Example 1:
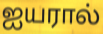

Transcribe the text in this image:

ஐயரால்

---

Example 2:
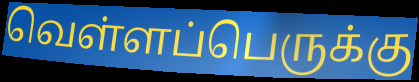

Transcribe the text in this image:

வெள்ளப்பெருக்கு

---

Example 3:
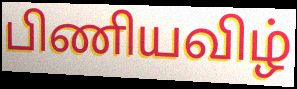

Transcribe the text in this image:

பிணியவிழ்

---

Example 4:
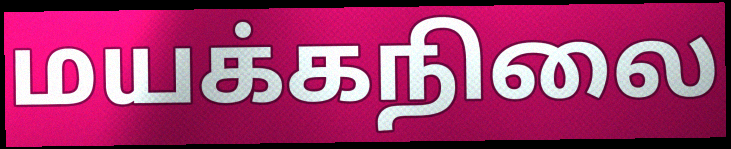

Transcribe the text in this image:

மயக்கநிலை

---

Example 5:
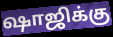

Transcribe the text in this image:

ஷாஜிக்கு